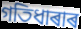
গতিধাৰাৰ